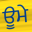
ਊਮੇ